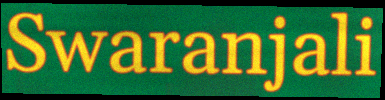
Swaranjali